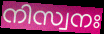
നിസ്വനഃ